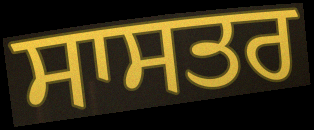
ਸਾਸਤਰ